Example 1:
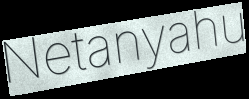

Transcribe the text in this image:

Netanyahu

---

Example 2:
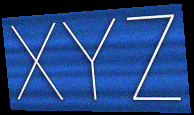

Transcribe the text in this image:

XYZ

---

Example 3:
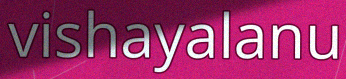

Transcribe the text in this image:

vishayalanu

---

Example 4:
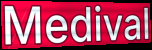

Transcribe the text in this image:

Medival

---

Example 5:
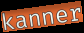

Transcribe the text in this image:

kanner